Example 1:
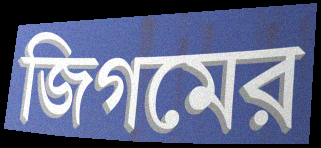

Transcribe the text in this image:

জিগমের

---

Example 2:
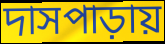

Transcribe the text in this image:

দাসপাড়ায়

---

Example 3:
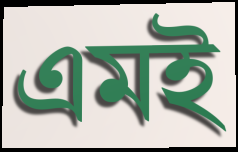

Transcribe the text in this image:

এমই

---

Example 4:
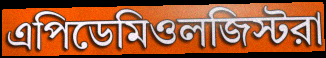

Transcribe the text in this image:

এপিডেমিওলজিস্টরা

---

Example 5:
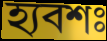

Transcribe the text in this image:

হ্যবশঃ